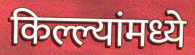
किल्ल्यांमध्ये